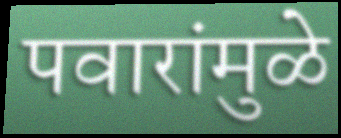
पवारांमुळे